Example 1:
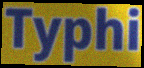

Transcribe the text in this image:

Typhi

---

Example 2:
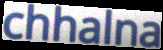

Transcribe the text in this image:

chhalna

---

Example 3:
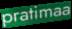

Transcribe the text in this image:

pratimaa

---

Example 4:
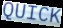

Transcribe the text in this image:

QUICK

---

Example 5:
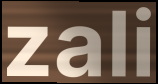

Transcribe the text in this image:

zali